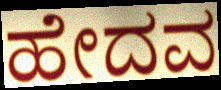
ಹೇದವ